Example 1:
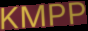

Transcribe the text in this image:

KMPP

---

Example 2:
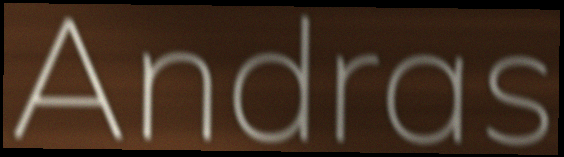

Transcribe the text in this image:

Andras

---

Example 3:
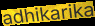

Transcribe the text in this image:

adhikarika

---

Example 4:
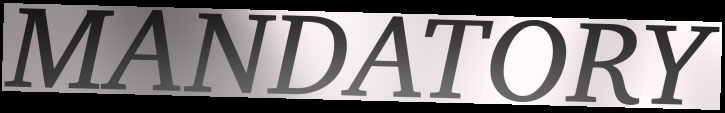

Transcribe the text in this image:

MANDATORY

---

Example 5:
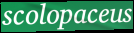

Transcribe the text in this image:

scolopaceus